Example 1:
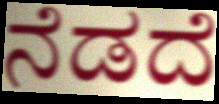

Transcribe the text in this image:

ನೆಡದೆ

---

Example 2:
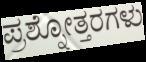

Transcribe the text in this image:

ಪ್ರಶ್ನೋತ್ತರಗಳು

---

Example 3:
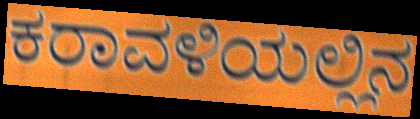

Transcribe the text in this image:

ಕರಾವಳಿಯಲ್ಲಿನ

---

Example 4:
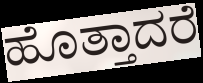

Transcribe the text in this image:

ಹೊತ್ತಾದರೆ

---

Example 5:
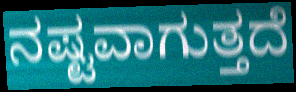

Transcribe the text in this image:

ನಷ್ಟವಾಗುತ್ತದೆ